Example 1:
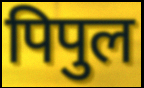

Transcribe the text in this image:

पिपुल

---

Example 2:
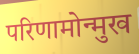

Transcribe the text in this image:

परिणामोन्मुख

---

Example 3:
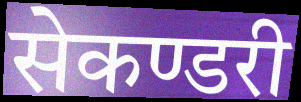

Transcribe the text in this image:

सेकण्‍डरी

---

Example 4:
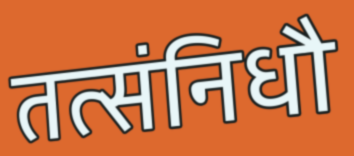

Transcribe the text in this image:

तत्संनिधौ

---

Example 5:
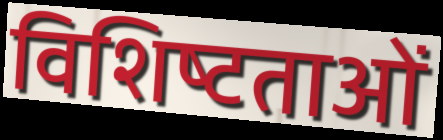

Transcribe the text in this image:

विशिष्‍टताओं